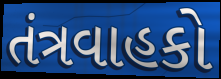
તંત્રવાહકો